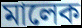
মালেক